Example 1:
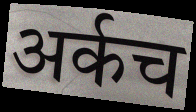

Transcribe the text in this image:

अर्कच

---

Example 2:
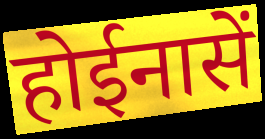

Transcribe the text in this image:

होईनासें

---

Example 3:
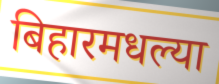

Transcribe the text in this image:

बिहारमधल्या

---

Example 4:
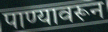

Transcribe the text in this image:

पाण्यावरून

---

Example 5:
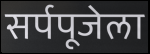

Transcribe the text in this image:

सर्पपूजेला